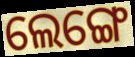
ଲେଙ୍ଗେ